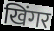
खिंगर